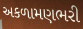
અકળામણભરી